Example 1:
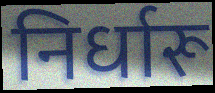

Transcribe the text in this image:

निर्धारू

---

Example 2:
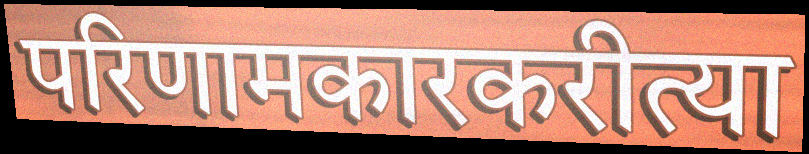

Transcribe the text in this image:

परिणामकारकरीत्या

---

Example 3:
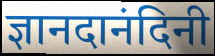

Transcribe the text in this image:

ज्ञानदानंदिनी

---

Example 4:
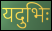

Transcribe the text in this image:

यदुभिः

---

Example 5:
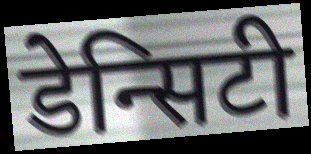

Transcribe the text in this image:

डेन्सिटी